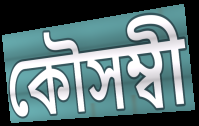
কৌসম্বী